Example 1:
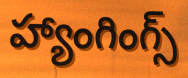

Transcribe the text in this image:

హ్యాంగింగ్స్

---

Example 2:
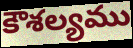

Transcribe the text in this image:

కౌశల్యము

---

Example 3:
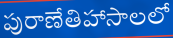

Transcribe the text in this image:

పురాణేతిహాసాలలో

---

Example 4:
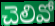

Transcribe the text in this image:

చెలివో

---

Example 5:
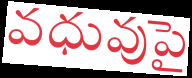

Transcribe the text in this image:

వధువుపై